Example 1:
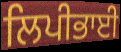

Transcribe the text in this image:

ਲਿਪੀਭਾਈ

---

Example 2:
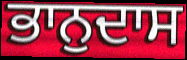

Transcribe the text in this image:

ਭਾਨੁਦਾਸ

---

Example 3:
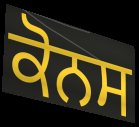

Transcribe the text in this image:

ਕੋਨਸ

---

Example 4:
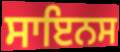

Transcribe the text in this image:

ਸਾਇਨਸ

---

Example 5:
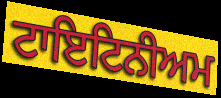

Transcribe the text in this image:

ਟਾਇਟਿਨੀਅਮ